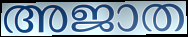
അജാത